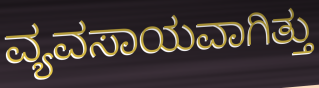
ವ್ಯವಸಾಯವಾಗಿತ್ತು